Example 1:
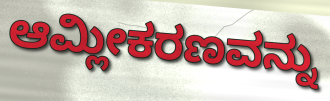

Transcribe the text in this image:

ಆಮ್ಲೀಕರಣವನ್ನು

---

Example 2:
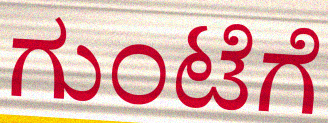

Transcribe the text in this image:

ಗುಂಟೆಗೆ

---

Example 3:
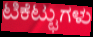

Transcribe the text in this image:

ಟಿಕೆಟ್ಟುಗಳು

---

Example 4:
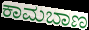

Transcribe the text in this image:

ಕಾಮಬಾಣ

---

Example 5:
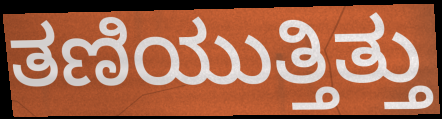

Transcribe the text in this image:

ತಣಿಯುತ್ತಿತ್ತು